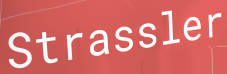
Strassler